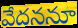
వేదననూ